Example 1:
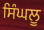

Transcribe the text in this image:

ਸਿੰਘਲੂ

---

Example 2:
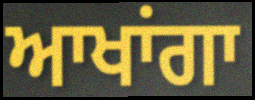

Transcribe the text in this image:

ਆਖਾਂਗਾ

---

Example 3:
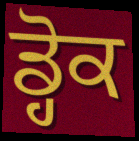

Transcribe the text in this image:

ਡ੍ਹੋਕ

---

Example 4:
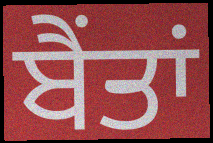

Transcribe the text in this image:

ਬੈਂਤਾਂ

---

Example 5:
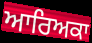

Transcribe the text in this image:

ਆਰਿਅਕਾ